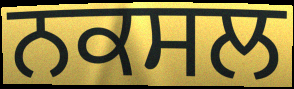
ਨਕਸਲ